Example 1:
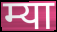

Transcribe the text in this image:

म्या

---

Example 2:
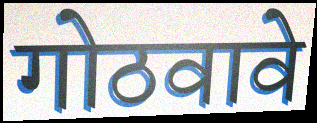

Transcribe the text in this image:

गोठवावे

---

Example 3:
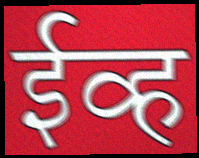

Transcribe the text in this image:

ईव्ह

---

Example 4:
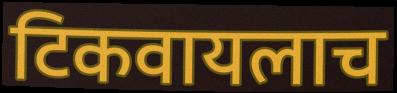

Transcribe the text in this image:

टिकवायलाच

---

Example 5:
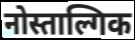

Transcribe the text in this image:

नोस्ताल्गिक